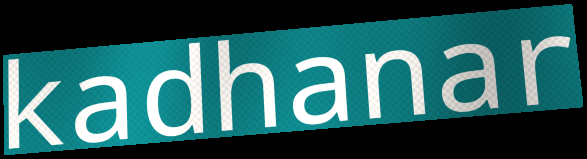
kadhanar